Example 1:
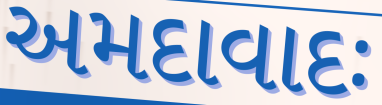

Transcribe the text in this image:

અમદાવાદઃ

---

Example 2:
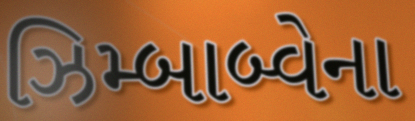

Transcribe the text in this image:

ઝિમ્બાબ્વેના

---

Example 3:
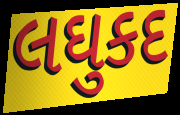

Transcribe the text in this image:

લઘુકદ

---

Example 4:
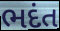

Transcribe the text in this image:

ભદંત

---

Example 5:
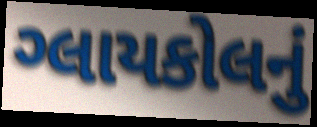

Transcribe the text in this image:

ગ્લાયકોલનું